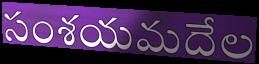
సంశయమదేల